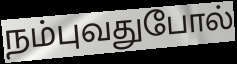
நம்புவதுபோல்